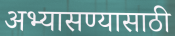
अभ्यासण्यासाठी